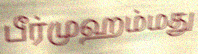
பீர்முஹம்மது